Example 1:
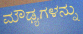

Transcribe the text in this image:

ಮೌಢ್ಯಗಳನ್ನು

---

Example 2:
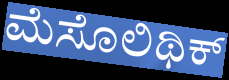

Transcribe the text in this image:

ಮೆಸೊಲಿಥಿಕ್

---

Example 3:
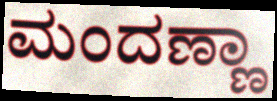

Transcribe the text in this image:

ಮಂದಣ್ಣಾ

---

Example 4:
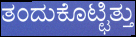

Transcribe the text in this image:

ತಂದುಕೊಟ್ಟಿತ್ತು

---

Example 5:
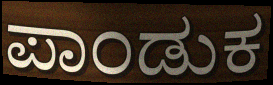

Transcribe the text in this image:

ಪಾಂಡುಕ